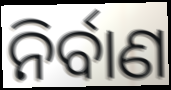
ନିର୍ବାଣ